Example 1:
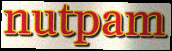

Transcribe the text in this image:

nutpam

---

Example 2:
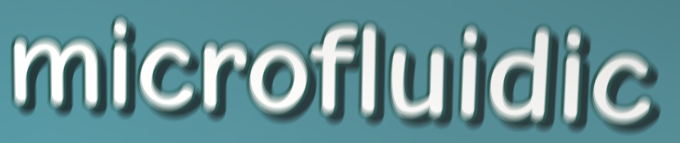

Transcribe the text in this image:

microfluidic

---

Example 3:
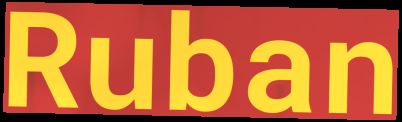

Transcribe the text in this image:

Ruban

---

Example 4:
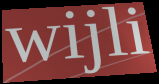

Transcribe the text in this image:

wijli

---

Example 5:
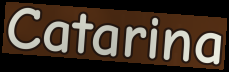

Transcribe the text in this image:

Catarina